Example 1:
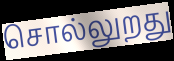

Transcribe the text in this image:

சொல்லுறது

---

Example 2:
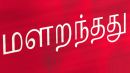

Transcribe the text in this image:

மளறந்தது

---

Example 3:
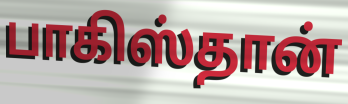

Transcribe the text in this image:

பாகிஸ்தான்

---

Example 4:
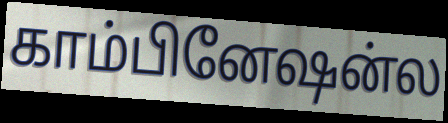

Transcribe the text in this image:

காம்பினேஷன்ல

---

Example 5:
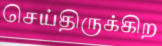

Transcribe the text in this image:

செய்திருக்கிற